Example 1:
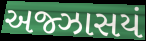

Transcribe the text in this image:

અજ્ઝાસયં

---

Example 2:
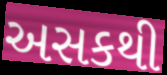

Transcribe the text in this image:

અસકથી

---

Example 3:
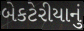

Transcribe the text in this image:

બેકટેરીયાનું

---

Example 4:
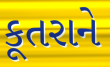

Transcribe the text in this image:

કૂતરાને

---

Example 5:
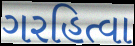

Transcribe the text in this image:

ગરહિત્વા